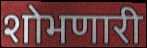
शोभणारी